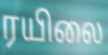
ரயிலை